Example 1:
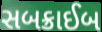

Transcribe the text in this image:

સબક્રાઈબ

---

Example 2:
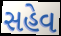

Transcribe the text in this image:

સહેવ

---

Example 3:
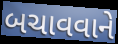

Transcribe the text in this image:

બચાવવાને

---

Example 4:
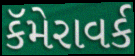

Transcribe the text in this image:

કૅમેરાવર્ક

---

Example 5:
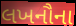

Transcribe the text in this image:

લખનૌના